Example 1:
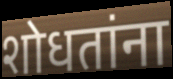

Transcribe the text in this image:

शोधतांना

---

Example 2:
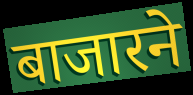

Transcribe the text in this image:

बाजारने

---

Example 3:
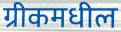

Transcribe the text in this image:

ग्रीकमधील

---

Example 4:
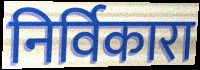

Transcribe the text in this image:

निर्विकारा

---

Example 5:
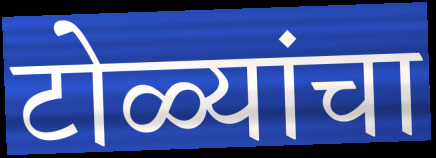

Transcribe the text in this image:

टोळ्यांचा